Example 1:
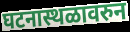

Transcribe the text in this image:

घटनास्थळावरुन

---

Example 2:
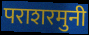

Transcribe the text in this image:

पराशरमुनी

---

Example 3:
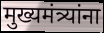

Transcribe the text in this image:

मुख्यमंत्र्यांना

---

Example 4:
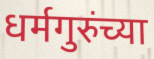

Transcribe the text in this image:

धर्मगुरुंच्या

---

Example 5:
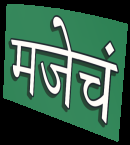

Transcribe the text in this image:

मजेचं